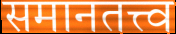
समानतत्त्व